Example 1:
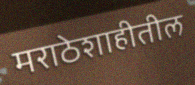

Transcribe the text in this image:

मराठेशाहीतील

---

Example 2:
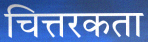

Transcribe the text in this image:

चित्तरकता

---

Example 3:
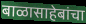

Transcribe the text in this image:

बाळासाहेबांचा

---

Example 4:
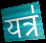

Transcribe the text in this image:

यत्र॑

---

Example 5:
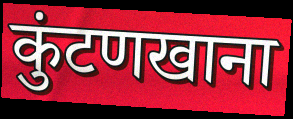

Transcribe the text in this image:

कुंटणखाना